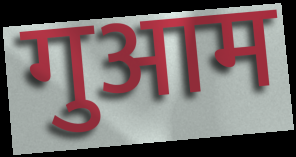
गुआम